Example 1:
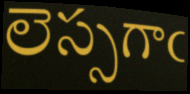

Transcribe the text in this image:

లెస్సగాఁ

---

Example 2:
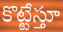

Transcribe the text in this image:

కొట్టేస్తూ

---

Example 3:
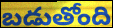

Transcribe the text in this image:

బడుతోంది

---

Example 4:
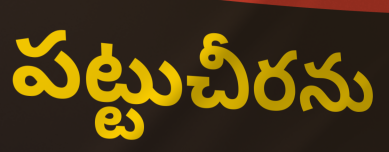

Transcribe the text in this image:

పట్టుచీరను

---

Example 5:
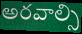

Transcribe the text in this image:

అరవాల్సి